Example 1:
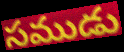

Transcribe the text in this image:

సముడు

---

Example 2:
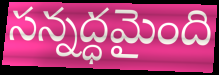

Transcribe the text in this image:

సన్నద్ధమైంది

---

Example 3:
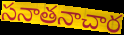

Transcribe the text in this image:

సనాతనాచార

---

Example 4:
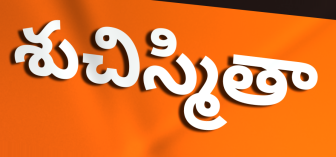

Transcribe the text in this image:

శుచిస్మితా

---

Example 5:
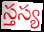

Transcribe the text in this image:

స్తస్య